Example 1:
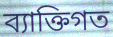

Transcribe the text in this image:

ব্যাক্তিগত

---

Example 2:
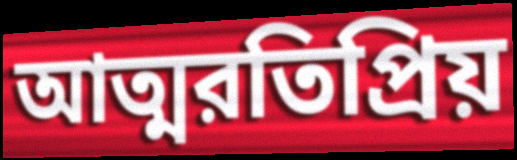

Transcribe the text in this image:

আত্মরতিপ্রিয়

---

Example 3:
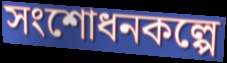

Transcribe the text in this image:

সংশোধনকল্পে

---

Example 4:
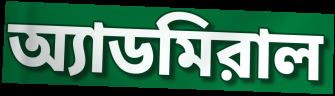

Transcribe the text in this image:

অ্যাডমিরাল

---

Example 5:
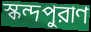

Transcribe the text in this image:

স্কন্দপুরাণ